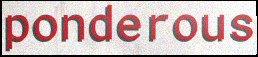
ponderous